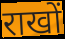
राखों